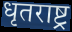
धृतराष्ट्र